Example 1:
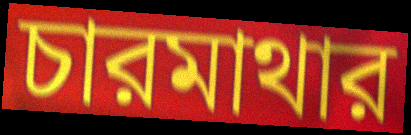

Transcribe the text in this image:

চারমাথার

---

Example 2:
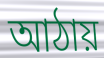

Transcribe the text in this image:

আঠায়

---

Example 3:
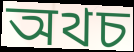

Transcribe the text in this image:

অথচ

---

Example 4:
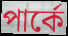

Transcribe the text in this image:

পার্কে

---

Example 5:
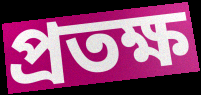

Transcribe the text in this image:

প্রতক্ষ